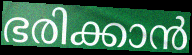
ഭരിക്കാൻ